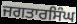
ਜਗਤਾਰਸਿੰਘ